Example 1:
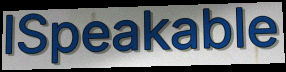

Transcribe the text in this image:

ISpeakable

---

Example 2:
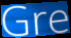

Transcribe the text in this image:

Gre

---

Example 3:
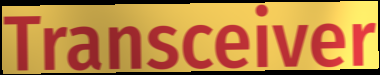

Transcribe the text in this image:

Transceiver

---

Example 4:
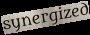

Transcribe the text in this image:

synergized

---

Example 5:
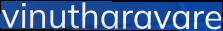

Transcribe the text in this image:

vinutharavare